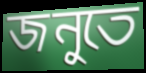
জনুতে